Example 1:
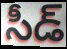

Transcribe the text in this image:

సీడ్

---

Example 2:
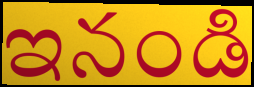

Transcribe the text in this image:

ఇనండి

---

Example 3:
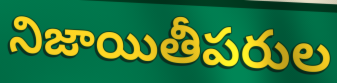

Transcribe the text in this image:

నిజాయితీపరుల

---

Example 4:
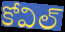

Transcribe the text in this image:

కోవిల్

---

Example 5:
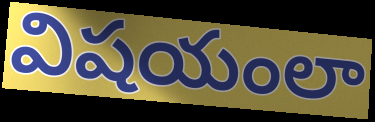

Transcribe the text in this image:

విషయంలా